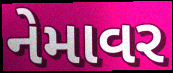
નેમાવર